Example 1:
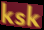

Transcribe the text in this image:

ksk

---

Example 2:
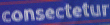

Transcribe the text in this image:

consectetur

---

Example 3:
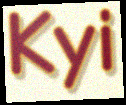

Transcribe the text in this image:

Kyi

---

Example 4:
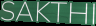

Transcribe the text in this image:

SAKTHI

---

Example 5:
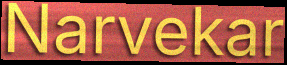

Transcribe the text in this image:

Narvekar